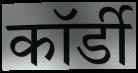
कॉर्डी